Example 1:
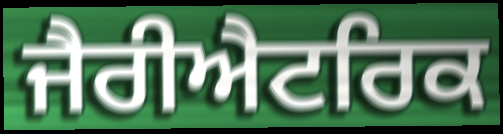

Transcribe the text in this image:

ਜੈਰੀਐਟਰਿਕ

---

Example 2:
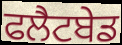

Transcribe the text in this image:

ਫਲੈਟਬੇਡ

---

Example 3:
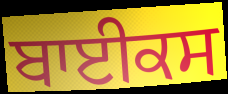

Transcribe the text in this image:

ਬਾਈਕਸ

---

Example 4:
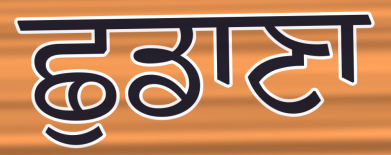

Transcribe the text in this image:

ਛੁਡਾਣਾ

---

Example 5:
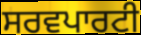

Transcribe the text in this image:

ਸਰਵਪਾਰਟੀ